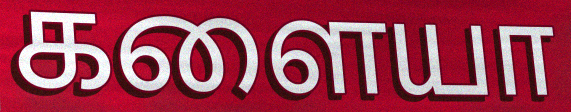
களையா